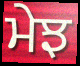
ਮੇਝ